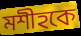
মশীহকে